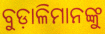
ବୁଡ଼ାଳିମାନଙ୍କୁ